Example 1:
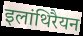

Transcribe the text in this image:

इलांथिरैयन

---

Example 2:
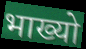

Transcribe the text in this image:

भाख्यो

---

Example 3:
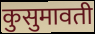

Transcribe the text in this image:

कुसुमावती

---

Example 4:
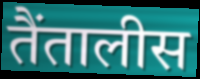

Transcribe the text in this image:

तैंतालीस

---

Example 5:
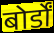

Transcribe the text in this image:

बोर्डों